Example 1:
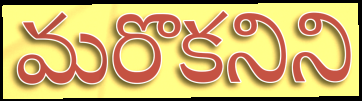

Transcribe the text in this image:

మరొకనిని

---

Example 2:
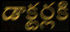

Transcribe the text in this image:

డాక్టర్లకి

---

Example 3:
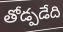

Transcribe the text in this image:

తోడ్పడేది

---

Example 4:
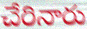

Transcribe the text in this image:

చేరినారు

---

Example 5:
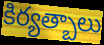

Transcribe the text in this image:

కిర్యత్బాలు